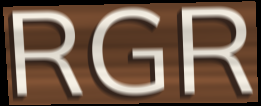
RGR